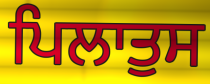
ਪਿਲਾਤੁਸ